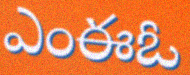
ఎంఈఓ